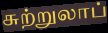
சுற்றுலாப்